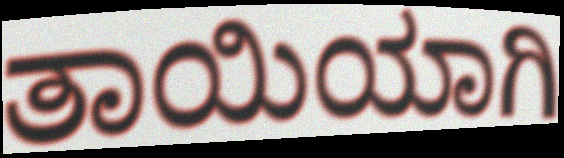
ತಾಯಿಯಾಗಿ